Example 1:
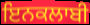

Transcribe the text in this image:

ਇਨਕਲਾਬੀ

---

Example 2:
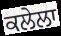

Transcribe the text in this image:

ਕਲੇਲਾ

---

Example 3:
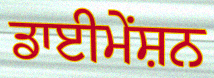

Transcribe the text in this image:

ਡਾਈਮੇਂਸ਼ਨ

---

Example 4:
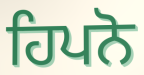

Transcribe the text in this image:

ਹਿਪਨੋ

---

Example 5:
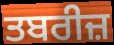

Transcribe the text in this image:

ਤਬਰੀਜ਼